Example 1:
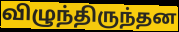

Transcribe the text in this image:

விழுந்திருந்தன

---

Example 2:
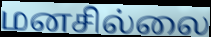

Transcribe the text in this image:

மனசில்லை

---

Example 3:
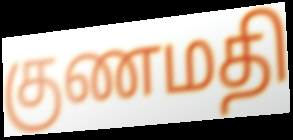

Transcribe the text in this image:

குணமதி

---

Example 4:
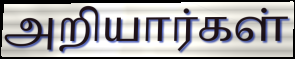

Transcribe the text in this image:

அறியார்கள்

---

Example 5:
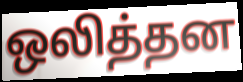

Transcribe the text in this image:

ஒலித்தன